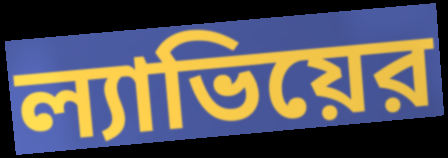
ল্যাভিয়ের